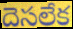
దెసలేక